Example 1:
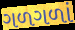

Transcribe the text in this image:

ગળગળાં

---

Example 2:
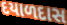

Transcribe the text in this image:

દયાળદાસ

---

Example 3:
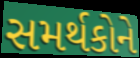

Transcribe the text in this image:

સમર્થકોને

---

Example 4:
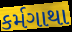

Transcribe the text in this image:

કર્મગાથા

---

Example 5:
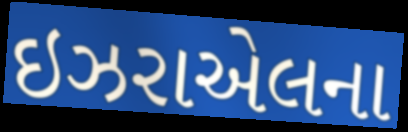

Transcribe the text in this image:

ઇઝરાએલના